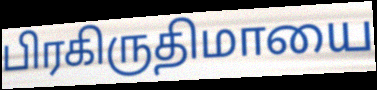
பிரகிருதிமாயை